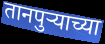
तानपुऱ्याच्या